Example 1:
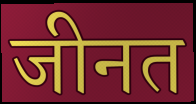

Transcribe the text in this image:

जीनत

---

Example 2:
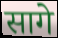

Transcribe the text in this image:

सागे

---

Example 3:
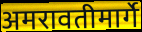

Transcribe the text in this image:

अमरावतीमार्गे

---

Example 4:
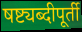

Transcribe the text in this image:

षष्ट्यब्दीपूर्ती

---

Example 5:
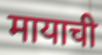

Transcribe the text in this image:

मायाची